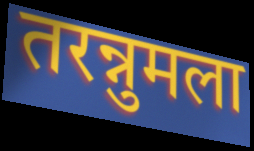
तरन्नुमला